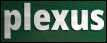
plexus